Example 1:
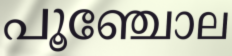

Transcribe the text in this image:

പൂഞ്ചോല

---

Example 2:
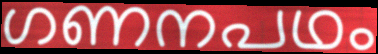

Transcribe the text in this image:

ഗണനപഥം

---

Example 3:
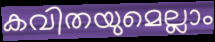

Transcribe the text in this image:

കവിതയുമെല്ലാം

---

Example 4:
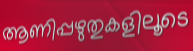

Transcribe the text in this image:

ആണിപ്പഴുതുകളിലൂടെ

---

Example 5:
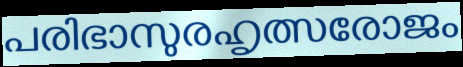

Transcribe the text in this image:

പരിഭാസുരഹൃത്സരോജം